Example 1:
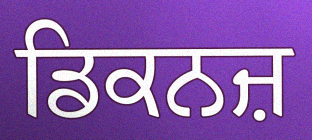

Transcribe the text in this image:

ਡਿਕਨਜ਼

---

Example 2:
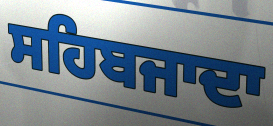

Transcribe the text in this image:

ਸਹਿਬਜਾਦਾ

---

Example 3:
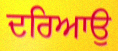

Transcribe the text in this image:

ਦਰਿਆਉ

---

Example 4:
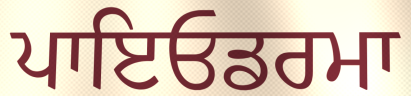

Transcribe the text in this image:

ਪਾਇਓਡਰਮਾ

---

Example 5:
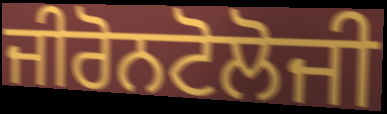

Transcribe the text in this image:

ਜੀਰੋਨਟੋਲੋਜੀ